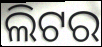
ଲିଟର